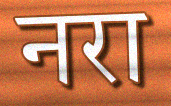
नरा